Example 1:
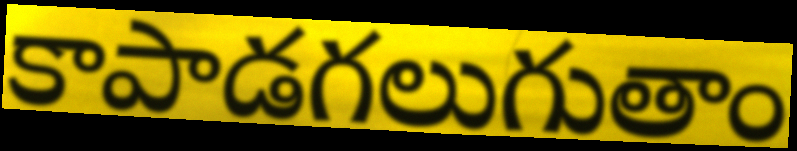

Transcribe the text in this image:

కాపాడగలుగుతాం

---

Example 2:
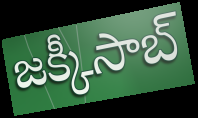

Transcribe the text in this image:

జక్కీసాబ్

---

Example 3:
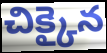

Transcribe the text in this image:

చిక్కైన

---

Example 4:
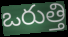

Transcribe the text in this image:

ఒరుత్తి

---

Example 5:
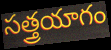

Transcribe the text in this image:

సత్త్రయాగం